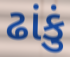
ઢાંકું